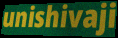
unishivaji